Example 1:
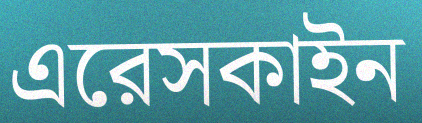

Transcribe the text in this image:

এরেসকাইন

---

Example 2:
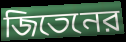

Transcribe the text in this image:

জিতেনের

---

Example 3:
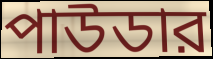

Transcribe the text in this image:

পাউডার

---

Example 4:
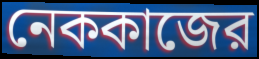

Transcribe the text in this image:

নেককাজের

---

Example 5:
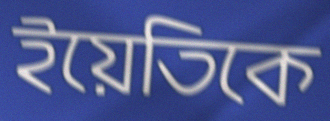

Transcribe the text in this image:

ইয়েতিকে